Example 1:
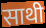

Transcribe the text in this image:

साथी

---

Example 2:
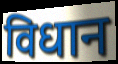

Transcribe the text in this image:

विधान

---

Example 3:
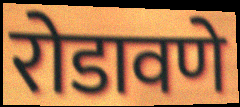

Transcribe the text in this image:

रोडावणे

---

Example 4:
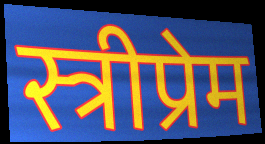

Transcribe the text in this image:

स्त्रीप्रेम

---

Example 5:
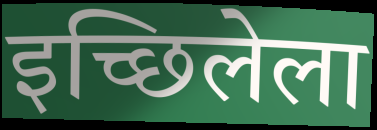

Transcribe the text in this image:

इच्छिलेला